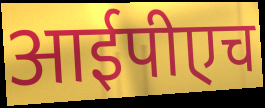
आईपीएच